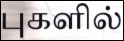
புகளில்